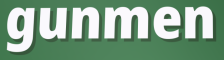
gunmen